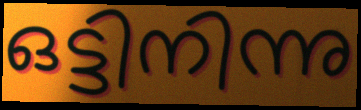
ഒട്ടിനിന്നു